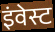
इंवेस्ट